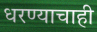
धरण्याचाही